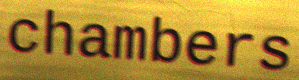
chambers